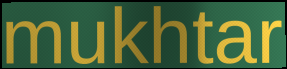
mukhtar